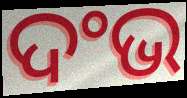
ଦଂଭ